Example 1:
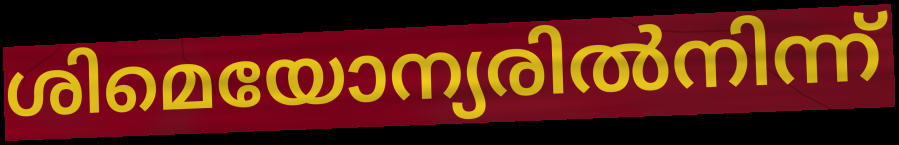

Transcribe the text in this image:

ശിമെയോന്യരിൽനിന്ന്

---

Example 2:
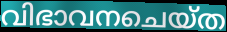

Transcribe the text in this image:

വിഭാവനചെയ്ത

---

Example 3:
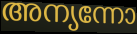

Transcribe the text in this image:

അന്യന്നോ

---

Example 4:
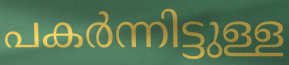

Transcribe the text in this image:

പകർന്നിട്ടുള്ള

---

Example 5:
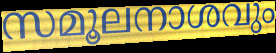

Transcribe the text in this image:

സമൂലനാശവും